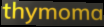
thymoma